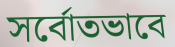
সর্বোতভাবে